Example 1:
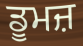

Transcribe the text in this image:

ਡੂਮਜ਼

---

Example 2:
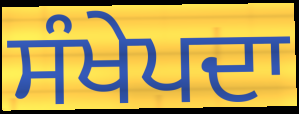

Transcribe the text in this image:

ਸੰਖੇਪਦਾ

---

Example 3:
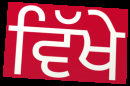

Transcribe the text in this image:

ਵਿੱਖੇ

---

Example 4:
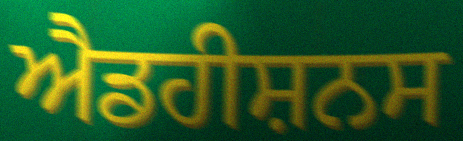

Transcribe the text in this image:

ਐਡਹੀਸ਼ਨਸ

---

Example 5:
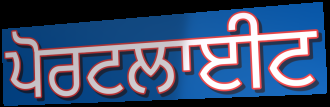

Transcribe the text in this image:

ਪੋਰਟਲਾਈਟ